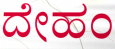
ದೇಹಂ